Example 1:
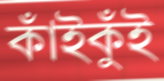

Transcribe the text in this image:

কাঁইকুঁই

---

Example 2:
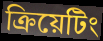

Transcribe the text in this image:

ক্রিয়েটিং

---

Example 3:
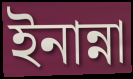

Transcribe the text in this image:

ইনান্না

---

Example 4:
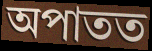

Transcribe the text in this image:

অপাতত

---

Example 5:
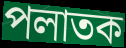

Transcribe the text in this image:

পলাতক